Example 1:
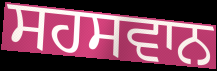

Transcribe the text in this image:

ਸਹਸਵਾਨ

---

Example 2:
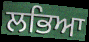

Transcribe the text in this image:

ਲਭਿਆ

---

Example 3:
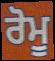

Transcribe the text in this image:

ਰੋਮੂ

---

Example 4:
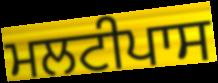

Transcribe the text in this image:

ਮਲਟੀਪਾਸ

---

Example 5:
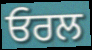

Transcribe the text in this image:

ਓਰਲ